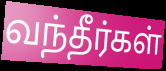
வந்தீர்கள்